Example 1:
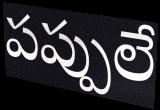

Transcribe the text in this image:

పప్పులే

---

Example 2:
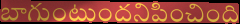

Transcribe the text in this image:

బాగుంటుందనిపించింది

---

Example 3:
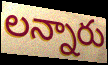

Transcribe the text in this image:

లన్నారు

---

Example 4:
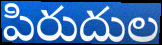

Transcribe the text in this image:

పిరుదుల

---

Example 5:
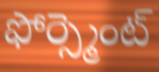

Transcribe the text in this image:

ఫోర్స్మెంట్